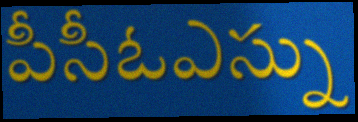
పీసీఓఎస్ను